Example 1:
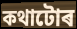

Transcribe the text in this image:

কথাটোৰ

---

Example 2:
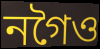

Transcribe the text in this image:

নগৈও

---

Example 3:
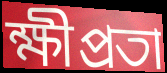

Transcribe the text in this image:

ক্ষীপ্ৰতা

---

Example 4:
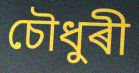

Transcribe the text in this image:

চৌধুৰী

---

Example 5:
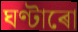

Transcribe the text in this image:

ঘণ্টাৰো